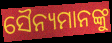
ସୈନ୍ୟମାନଙ୍କୁ